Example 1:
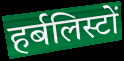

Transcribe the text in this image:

हर्बलिस्टों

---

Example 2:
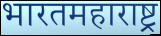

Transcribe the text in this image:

भारतमहाराष्ट्र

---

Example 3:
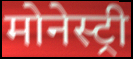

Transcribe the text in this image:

मोनेस्‍ट्री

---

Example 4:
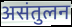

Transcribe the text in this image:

असंतुलन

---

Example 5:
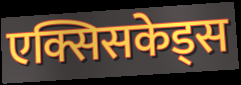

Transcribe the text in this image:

एक्सिसकेड्स